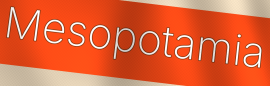
Mesopotamia